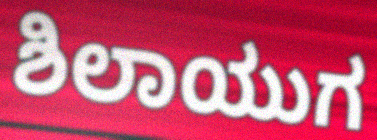
ಶಿಲಾಯುಗ